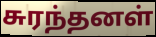
சுரந்தனள்